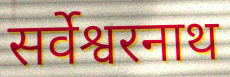
सर्वेश्वरनाथ